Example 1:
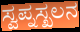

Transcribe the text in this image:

ಸ್ವಪ್ನಸ್ಖಲನ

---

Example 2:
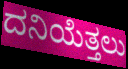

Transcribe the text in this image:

ದನಿಯೆತ್ತಲು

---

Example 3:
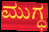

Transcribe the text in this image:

ಮುಗ್ಧ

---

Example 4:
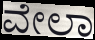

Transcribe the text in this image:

ವೇಲಾ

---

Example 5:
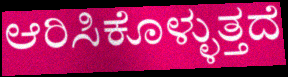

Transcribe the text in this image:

ಆರಿಸಿಕೊಳ್ಳುತ್ತದೆ